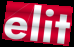
elit